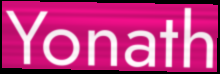
Yonath